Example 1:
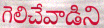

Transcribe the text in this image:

గెలిచేవాడిని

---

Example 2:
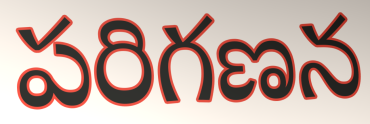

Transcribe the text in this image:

పరిగణన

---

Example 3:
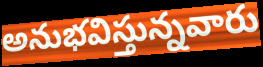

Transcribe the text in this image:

అనుభవిస్తున్నవారు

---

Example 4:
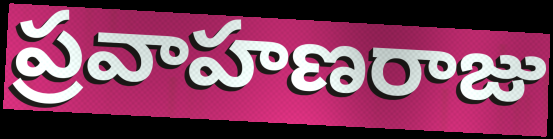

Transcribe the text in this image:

ప్రవాహణరాజు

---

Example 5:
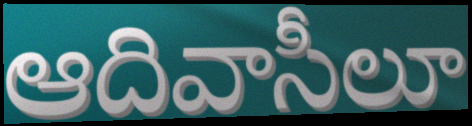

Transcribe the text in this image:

ఆదివాసీలూ